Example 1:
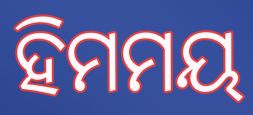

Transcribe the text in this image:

ହିମମୟ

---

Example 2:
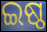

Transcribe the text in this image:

ଇଷ୍ଠ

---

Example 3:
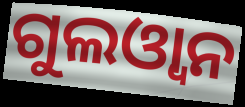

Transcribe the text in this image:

ଗୁଲଓ୍ୱାନ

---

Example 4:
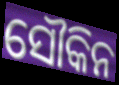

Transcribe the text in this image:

ସୌକିନ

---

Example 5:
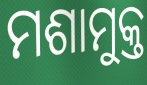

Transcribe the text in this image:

ମଶାମୁକ୍ତ